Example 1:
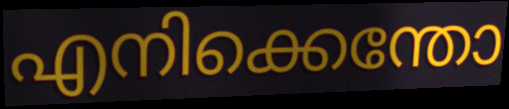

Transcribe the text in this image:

എനിക്കെന്തോ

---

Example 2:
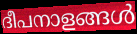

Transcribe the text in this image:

ദീപനാളങ്ങൾ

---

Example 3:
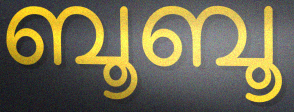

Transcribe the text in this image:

ബൂബൂ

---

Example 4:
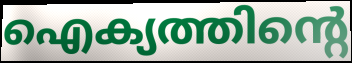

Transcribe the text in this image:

ഐക്യത്തിന്റെ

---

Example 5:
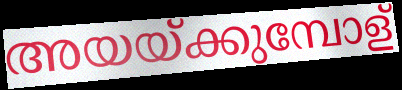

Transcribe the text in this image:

അയയ്ക്കുമ്പോള്